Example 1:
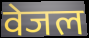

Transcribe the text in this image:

वेजल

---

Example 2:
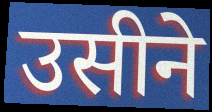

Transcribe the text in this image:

उसीने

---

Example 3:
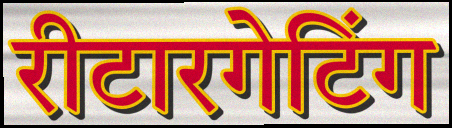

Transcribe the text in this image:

रीटारगेटिंग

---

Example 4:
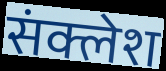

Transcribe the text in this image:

संक्लेश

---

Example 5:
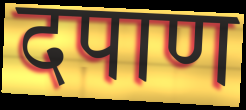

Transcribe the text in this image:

दपाण